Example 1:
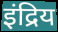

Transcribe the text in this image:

इंद्रिय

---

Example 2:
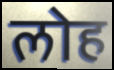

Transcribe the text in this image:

लोह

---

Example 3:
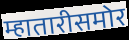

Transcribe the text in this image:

म्हातारीसमोर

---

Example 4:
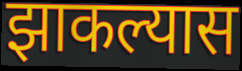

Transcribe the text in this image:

झाकल्यास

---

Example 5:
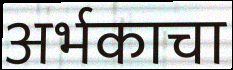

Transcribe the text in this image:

अर्भकाचा